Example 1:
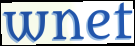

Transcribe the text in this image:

wnet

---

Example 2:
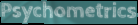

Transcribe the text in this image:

Psychometrics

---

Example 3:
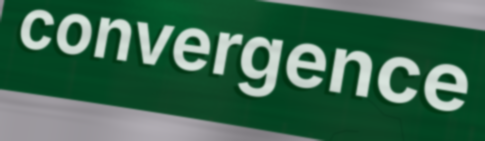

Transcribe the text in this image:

convergence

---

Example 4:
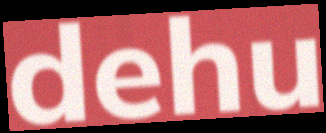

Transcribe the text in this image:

dehu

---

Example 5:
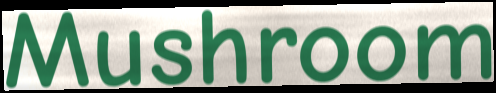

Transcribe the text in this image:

Mushroom